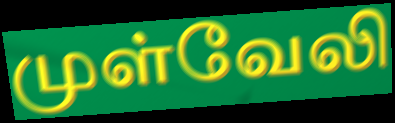
முள்வேலி